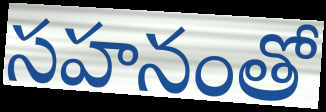
సహనంతో